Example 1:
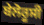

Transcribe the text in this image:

ਬੇਲੋਰੂਸੀ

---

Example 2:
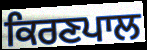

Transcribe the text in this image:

ਕਿਰਣਪਾਲ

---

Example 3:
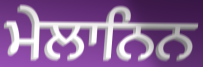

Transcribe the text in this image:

ਮੇਲਾਨਿਨ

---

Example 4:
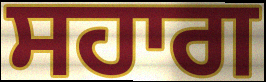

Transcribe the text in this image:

ਸਹਾਗ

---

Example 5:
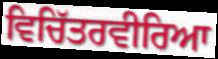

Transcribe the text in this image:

ਵਿਚਿੱਤਰਵੀਰਿਆ